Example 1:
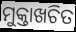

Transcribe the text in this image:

ମୁକ୍ତାଖଚିତ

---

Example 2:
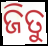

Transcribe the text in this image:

ଜିତୁ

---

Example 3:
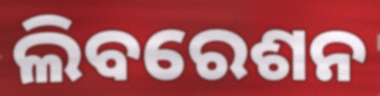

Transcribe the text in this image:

ଲିବରେଶନ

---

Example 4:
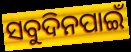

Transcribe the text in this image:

ସବୁଦିନପାଇଁ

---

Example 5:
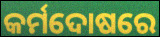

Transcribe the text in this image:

କର୍ମଦୋଷରେ